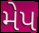
મેપ